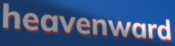
heavenward